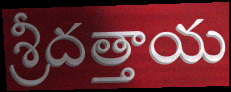
శ్రీదత్తాయ